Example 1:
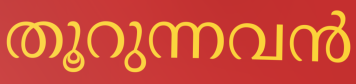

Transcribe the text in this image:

തൂറുന്നവൻ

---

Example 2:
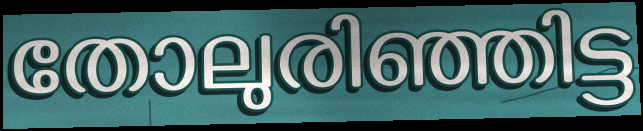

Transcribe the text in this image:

തോലുരിഞ്ഞിട്ട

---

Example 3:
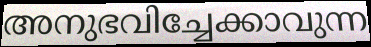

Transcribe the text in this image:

അനുഭവിച്ചേക്കാവുന്ന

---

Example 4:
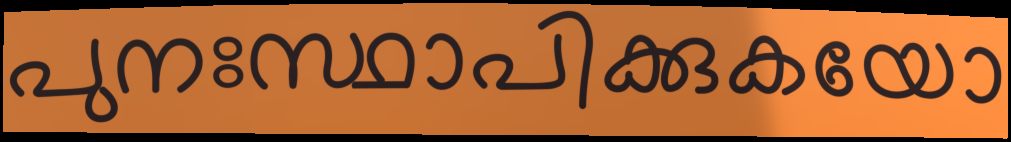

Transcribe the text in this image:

പുനഃസ്ഥാപിക്കുകയോ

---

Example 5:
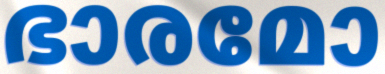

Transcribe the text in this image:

ഭാരമോ